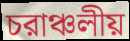
চরাঞ্চলীয়